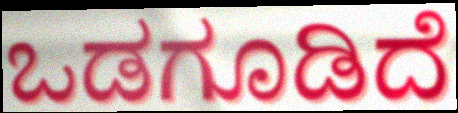
ಒಡಗೂಡಿದೆ